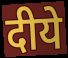
दीये